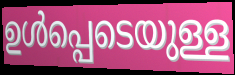
ഉൾപ്പെടെയുള്ള